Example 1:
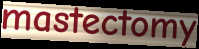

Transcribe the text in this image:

mastectomy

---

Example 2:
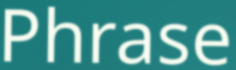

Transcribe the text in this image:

Phrase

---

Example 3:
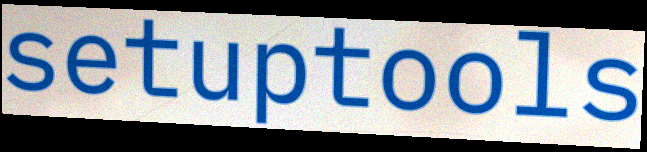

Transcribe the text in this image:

setuptools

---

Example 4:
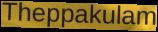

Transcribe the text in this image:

Theppakulam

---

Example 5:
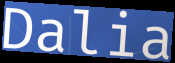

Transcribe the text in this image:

Dalia